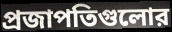
প্রজাপতিগুলোর